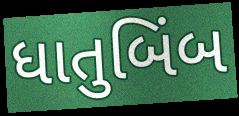
ધાતુબિંબ